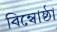
বিম্বোষ্ঠা